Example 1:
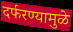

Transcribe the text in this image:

दर्फरण्यामुळे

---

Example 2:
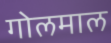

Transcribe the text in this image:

गोलमाल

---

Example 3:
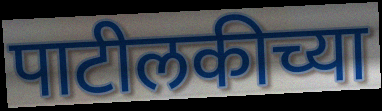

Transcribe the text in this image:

पाटीलकीच्या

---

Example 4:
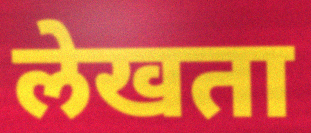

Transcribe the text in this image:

लेखता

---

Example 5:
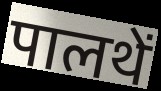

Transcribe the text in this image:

पालथें